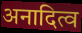
अनादित्व